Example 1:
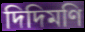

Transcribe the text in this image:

দিদিমণি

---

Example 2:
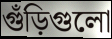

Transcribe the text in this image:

গুঁড়িগুলো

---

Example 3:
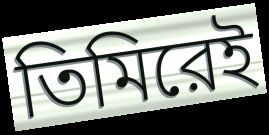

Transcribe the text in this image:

তিমিরেই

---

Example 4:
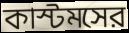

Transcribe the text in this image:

কাস্টমসের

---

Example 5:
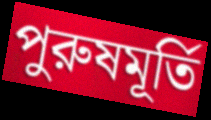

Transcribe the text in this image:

পুরুষমূর্তি